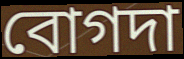
বোগদা